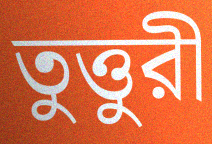
তুত্তুরী